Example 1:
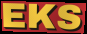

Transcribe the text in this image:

EKS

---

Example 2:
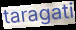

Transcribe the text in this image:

taragati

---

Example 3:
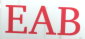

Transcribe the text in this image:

EAB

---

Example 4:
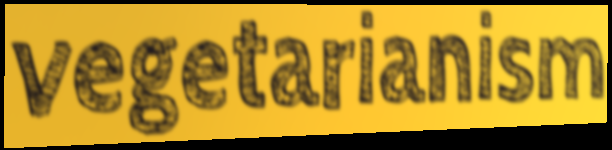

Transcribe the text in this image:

vegetarianism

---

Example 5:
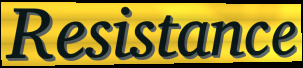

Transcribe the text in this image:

Resistance